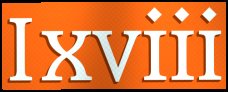
Ixviii